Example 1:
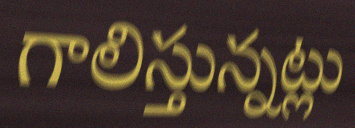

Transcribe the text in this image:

గాలిస్తున్నట్లు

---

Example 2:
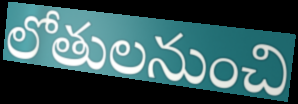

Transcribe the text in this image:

లోతులనుంచి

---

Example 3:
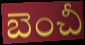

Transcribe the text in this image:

బెంచీ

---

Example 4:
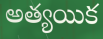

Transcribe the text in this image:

అత్యయిక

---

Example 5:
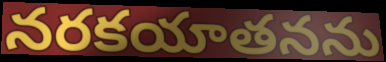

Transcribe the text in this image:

నరకయాతనను